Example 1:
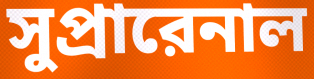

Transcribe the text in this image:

সুপ্রারেনাল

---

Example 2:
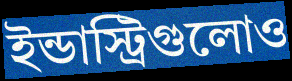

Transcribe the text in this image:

ইন্ডাস্ট্রিগুলোও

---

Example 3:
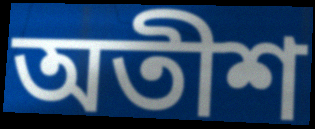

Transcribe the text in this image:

অতীশ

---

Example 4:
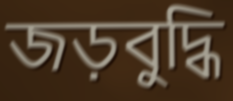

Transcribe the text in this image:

জড়বুদ্ধি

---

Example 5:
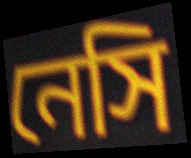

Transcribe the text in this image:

নেসি